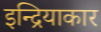
इन्द्रियाकार